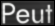
Peut